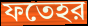
ফতেহর